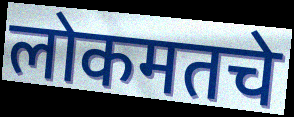
लोकमतचे